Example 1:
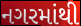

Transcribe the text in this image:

નગરમાંથી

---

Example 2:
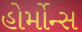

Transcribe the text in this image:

હોર્મોન્સ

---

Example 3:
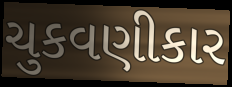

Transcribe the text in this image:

ચુકવણીકાર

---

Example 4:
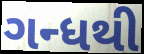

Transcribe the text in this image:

ગન્ધથી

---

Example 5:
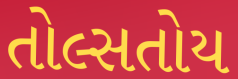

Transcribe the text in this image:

તોલ્સતોય